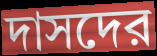
দাসদের